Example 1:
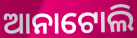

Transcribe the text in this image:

ଆନାଟୋଲି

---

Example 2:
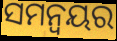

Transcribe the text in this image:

ସମନ୍ଵୟର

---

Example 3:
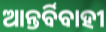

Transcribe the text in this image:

ଆନ୍ତର୍ବିବାହୀ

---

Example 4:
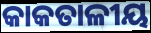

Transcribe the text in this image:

କାକତାଳୀୟ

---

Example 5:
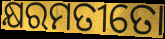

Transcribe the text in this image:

କ୍ଷରମତୀତୋ